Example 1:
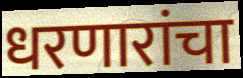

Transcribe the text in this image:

धरणारांचा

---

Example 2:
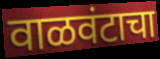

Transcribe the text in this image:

वाळवंटाचा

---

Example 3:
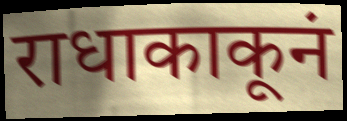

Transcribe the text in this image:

राधाकाकूनं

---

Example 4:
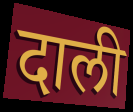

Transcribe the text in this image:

दाली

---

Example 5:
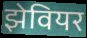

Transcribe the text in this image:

झेवियर